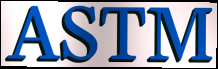
ASTM